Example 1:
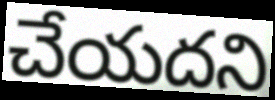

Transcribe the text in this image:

చేయదని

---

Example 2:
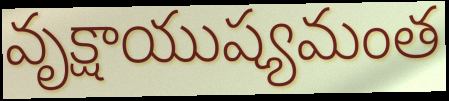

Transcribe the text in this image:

వృక్షాయుష్యమంత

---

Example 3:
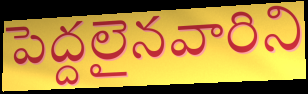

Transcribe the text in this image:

పెద్దలైనవారిని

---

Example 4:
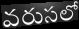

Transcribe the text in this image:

వరుసలో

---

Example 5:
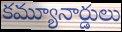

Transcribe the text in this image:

కమ్యూనార్డులు